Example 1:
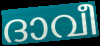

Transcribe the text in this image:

ദാവീ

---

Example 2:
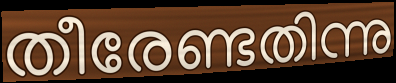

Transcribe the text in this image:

തീരേണ്ടതിന്നു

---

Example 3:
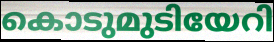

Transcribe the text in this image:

കൊടുമുടിയേറി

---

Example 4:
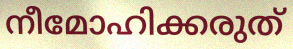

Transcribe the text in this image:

നീമോഹിക്കരുത്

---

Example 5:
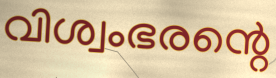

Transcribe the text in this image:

വിശ്വംഭരന്റെ